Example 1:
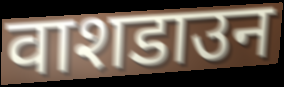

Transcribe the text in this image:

वाशडाउन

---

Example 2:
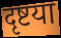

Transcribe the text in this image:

दृष्टया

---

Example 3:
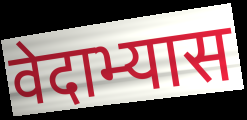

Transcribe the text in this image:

वेदाभ्यास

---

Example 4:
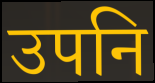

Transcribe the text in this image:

उपनि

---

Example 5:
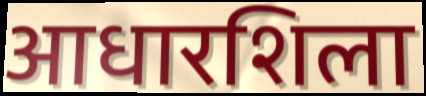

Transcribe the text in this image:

आधारशिला